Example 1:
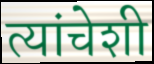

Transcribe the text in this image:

त्यांचेशी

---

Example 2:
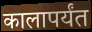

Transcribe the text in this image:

कालापर्यंत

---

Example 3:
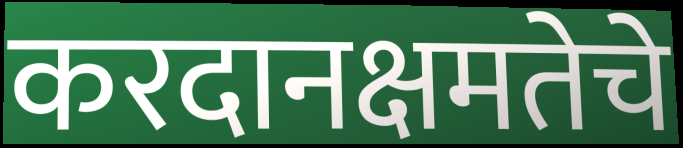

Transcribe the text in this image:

करदानक्षमतेचे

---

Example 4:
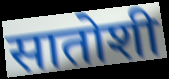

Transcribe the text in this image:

सातोशी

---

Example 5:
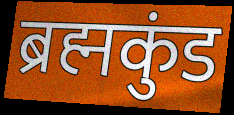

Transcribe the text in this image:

ब्रह्मकुंड